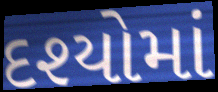
દશ્યોમાં